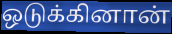
ஒடுக்கினான்